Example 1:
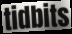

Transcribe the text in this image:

tidbits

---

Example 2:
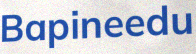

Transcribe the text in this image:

Bapineedu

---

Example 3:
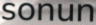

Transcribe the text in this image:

sonun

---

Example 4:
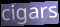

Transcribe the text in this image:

cigars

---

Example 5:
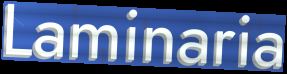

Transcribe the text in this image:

Laminaria